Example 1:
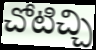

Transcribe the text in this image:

చోటిచ్చి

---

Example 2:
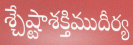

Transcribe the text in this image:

శ్చేష్టాశక్తిముదీర్య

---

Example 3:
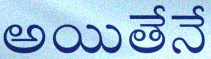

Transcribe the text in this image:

అయితేనే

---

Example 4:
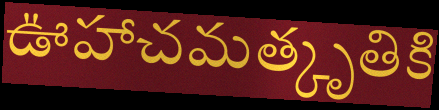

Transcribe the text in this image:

ఊహాచమత్కృతికి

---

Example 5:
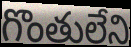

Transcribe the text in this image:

గొంతులేని